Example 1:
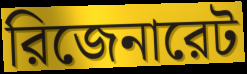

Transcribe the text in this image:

রিজেনারেট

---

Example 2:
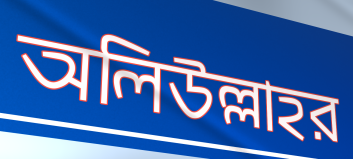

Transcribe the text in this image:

অলিউল্লাহর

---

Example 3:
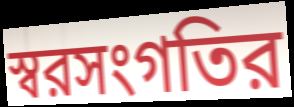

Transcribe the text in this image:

স্বরসংগতির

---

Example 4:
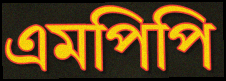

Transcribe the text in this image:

এমপিপি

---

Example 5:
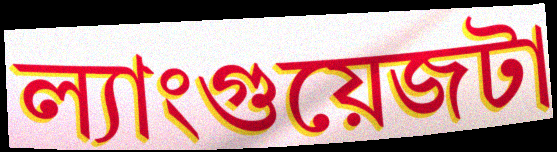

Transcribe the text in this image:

ল্যাংগুয়েজটা